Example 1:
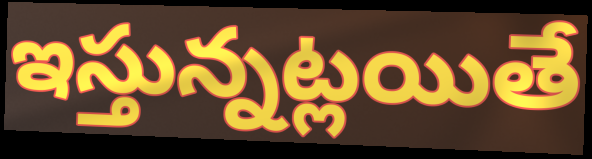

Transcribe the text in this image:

ఇస్తున్నట్లయితే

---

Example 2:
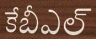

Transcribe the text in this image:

కేబీఎల్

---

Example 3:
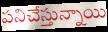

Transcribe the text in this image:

పనిచేస్తున్నాయి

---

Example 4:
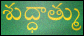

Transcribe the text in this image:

శుద్ధాత్ము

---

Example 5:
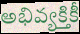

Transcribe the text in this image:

అభివ్యక్తికీ